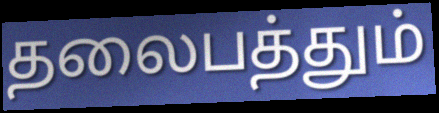
தலைபத்தும்